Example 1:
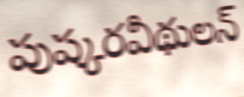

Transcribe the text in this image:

పుష్కరవీథులన్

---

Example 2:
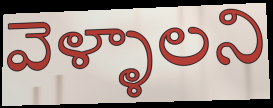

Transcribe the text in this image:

వెళ్ళాలని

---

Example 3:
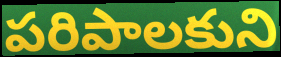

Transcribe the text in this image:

పరిపాలకుని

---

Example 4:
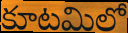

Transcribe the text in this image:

కూటమిలో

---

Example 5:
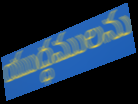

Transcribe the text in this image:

యుద్ధములను